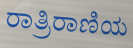
ರಾತ್ರಿರಾಣಿಯ